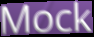
Mock